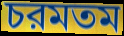
চরমতম